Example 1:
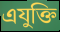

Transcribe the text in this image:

এযুক্তি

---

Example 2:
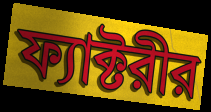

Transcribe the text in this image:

ফ্যাক্টরীর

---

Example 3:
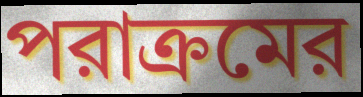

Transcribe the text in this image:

পরাক্রমের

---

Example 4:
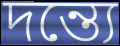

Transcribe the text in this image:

দন্ত্যে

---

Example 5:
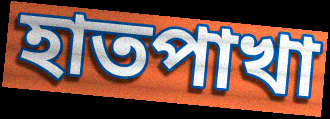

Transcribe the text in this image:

হাতপাখা